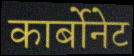
कार्बोनेट